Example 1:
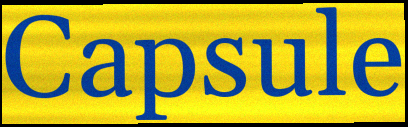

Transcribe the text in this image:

Capsule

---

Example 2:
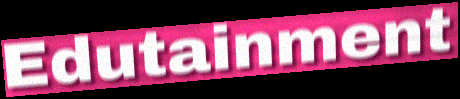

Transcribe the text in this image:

Edutainment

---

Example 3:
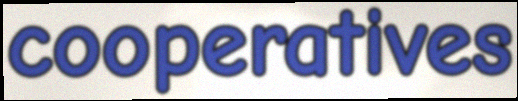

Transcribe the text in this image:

cooperatives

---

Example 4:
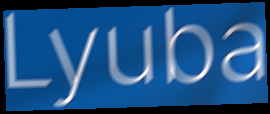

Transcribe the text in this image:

Lyuba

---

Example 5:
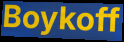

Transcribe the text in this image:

Boykoff